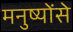
मनुष्योंसे